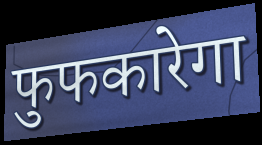
फुफकारेगा